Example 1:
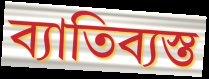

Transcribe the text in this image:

ব্যাতিব্যস্ত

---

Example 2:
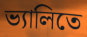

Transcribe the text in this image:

ভ্যালিতে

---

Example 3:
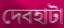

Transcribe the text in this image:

দেবহাটা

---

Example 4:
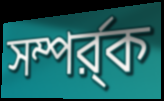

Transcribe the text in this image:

সম্পর্র্ক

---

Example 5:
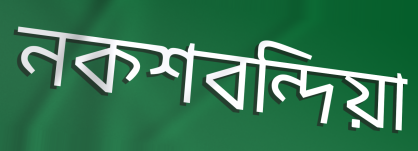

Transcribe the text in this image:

নকশবন্দিয়া